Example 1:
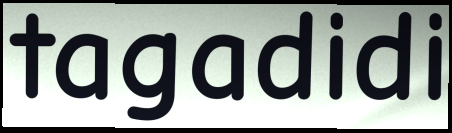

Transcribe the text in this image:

tagadidi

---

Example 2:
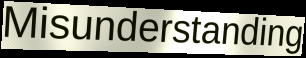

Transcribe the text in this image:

Misunderstanding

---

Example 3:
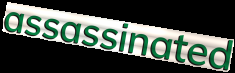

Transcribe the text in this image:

assassinated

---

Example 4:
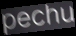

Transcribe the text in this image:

pechu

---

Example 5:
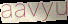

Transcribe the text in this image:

aavyu